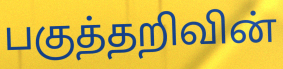
பகுத்தறிவின்